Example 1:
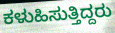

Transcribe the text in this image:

ಕಳುಹಿಸುತ್ತಿದ್ದರು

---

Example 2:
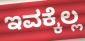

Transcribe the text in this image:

ಇವಕ್ಕೆಲ್ಲ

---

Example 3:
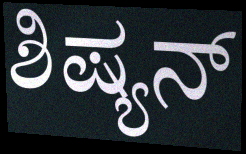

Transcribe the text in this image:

ಶಿಷ್ಯನ್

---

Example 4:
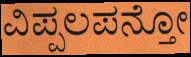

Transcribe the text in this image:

ವಿಪ್ಪಲಪನ್ತೋ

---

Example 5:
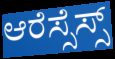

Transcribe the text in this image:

ಆರೆಸ್ಸೆಸ್ಸ್